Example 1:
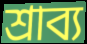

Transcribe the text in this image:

শ্ৰাব্য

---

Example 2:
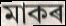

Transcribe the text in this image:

মাকৰ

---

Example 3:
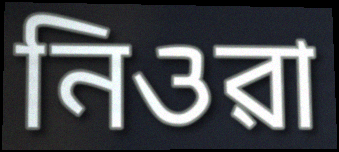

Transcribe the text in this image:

নিওৱা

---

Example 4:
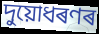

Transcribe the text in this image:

দুয়োধৰণৰ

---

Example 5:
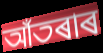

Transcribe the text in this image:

আঁতৰাৰ